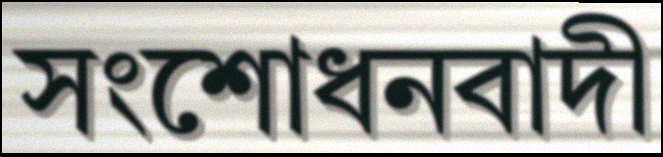
সংশোধনবাদী